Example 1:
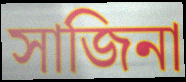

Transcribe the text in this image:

সাজিনা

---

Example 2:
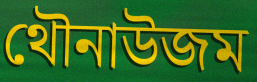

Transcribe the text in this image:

থৌনাউজম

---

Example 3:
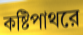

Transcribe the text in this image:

কষ্টিপাথরে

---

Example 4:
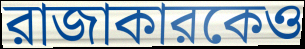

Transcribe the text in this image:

রাজাকারকেও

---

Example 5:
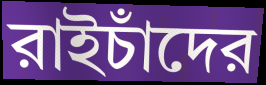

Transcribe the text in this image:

রাইচাঁদের